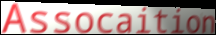
Assocaition